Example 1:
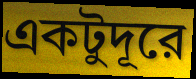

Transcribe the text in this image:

একটুদূরে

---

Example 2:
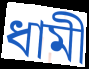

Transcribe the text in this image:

ধামী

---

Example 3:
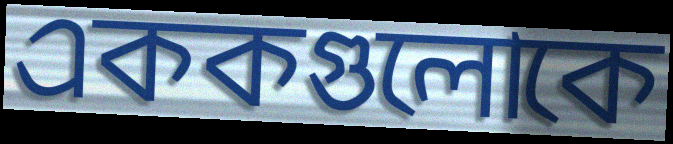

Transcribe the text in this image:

এককগুলোকে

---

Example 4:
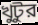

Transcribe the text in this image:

খুটুর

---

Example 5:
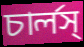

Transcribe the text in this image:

চার্লস্